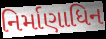
નિર્માણાધિન